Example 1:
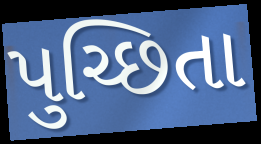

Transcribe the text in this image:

પુચ્છિતા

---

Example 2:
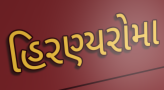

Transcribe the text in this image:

હિરણ્યરોમા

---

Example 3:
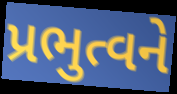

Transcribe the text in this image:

પ્રભુત્વને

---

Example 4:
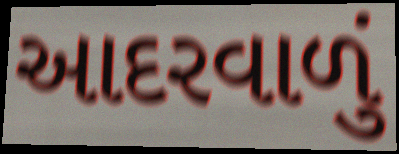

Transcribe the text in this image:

આદરવાળું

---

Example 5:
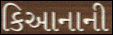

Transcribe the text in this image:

કિઆનાની